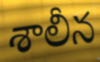
శాలీన